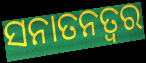
ସନାତନତ୍ୱର